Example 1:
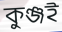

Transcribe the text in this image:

কুঞ্জই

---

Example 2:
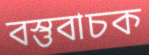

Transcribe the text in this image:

বস্তুবাচক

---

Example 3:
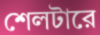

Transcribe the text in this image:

শেলটারে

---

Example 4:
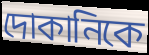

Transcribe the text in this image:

দোকানিকে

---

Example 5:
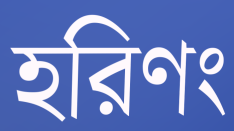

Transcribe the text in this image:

হরিণং